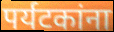
पर्यटकांना